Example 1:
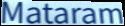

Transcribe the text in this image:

Mataram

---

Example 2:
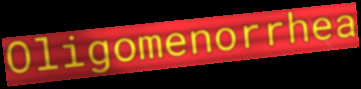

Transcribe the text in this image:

Oligomenorrhea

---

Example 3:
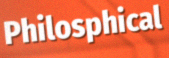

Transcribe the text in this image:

Philosphical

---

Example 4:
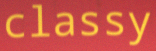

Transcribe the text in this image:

classy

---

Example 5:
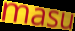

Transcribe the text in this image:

masu